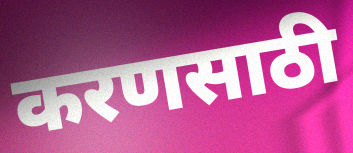
करणसाठी